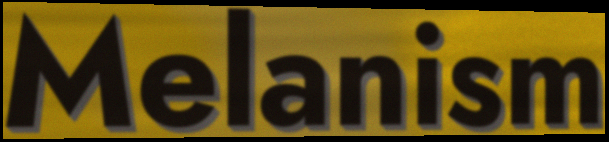
Melanism